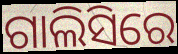
ଗାଲିସିରେ